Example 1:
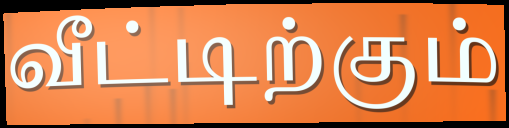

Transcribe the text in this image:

வீட்டிற்கும்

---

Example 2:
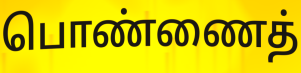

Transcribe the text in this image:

பொண்ணைத்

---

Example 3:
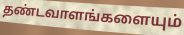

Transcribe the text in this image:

தண்டவாளங்களையும்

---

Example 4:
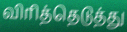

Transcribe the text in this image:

விரித்தெடுத்து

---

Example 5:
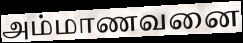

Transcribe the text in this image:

அம்மாணவனை